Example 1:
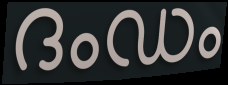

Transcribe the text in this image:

ദംഡം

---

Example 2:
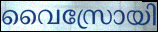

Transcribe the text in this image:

വൈസ്രോയി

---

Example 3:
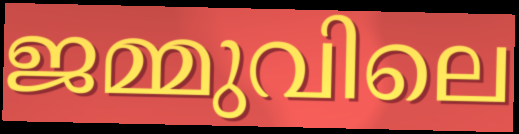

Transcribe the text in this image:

ജമ്മുവിലെ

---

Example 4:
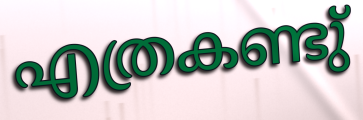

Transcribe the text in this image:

എത്രകണ്ടു്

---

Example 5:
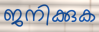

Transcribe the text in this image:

ജനിക്കുക